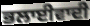
ਭਲਾਈਵਾਦੀ